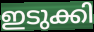
ഇടുക്കി